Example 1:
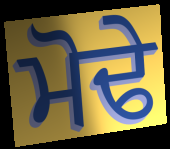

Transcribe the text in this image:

ਮੋਢੇ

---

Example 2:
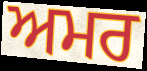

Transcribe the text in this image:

ਅਮਰ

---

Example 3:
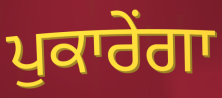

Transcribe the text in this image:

ਪੁਕਾਰੇਂਗਾ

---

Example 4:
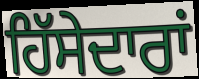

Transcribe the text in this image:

ਹਿੱਸੇਦਾਰਾਂ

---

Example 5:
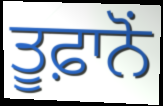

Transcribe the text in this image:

ਤੂਫ਼ਾਨੋਂ